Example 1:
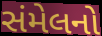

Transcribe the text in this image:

સંમેલનો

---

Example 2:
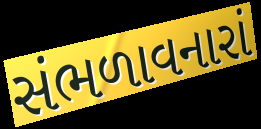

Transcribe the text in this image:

સંભળાવનારાં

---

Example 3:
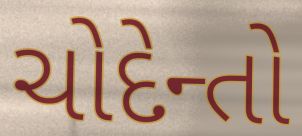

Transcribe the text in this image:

ચોદેન્તો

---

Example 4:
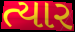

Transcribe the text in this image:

ત્‍યાર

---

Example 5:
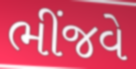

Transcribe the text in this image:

ભીંજવે